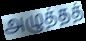
அழுத்தத்